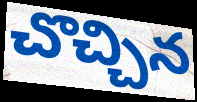
చొచ్చిన